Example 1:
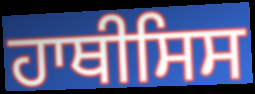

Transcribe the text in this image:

ਹਾਥੀਸਿਸ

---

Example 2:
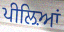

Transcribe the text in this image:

ਪੀਲ਼ਿਆਂ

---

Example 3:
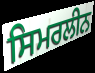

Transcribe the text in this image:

ਸਿਮਰਲੀਨ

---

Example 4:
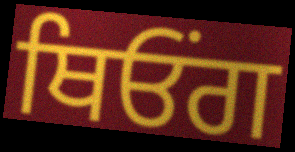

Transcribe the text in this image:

ਥਿਓਂਗ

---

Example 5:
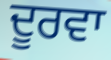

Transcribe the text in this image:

ਦੂਰਵਾ